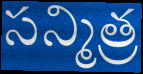
సన్మిత్ర